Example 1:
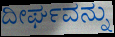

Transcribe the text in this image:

ದೀರ್ಘವನ್ನು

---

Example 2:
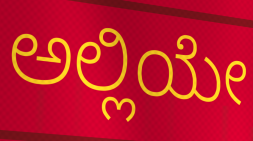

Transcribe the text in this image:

ಅಲ್ಲಿಯೇ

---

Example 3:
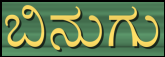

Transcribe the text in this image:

ಬಿನುಗು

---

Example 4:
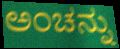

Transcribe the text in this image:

ಅಂಚನ್ನು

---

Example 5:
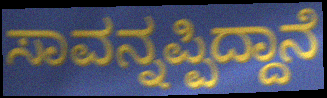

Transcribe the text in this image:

ಸಾವನ್ನಪ್ಪಿದ್ದಾನೆ